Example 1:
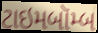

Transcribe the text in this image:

ટાઇમબૉમ્બ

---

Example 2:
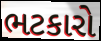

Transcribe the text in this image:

ભટકારો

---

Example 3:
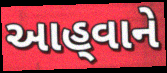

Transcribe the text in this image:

આહ્‌વાને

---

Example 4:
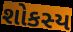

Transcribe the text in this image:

શોકસ્ય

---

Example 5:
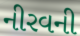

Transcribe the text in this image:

નીરવની